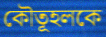
কৌতূহলকে